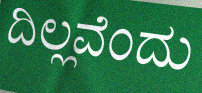
ದಿಲ್ಲವೆಂದು